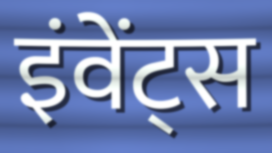
इंवेंट्स